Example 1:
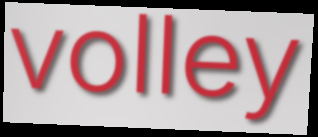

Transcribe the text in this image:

volley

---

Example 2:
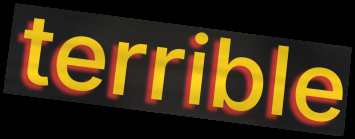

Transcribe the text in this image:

terrible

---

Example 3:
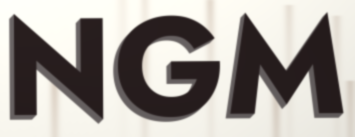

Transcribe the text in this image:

NGM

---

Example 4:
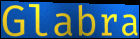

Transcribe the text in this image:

Glabra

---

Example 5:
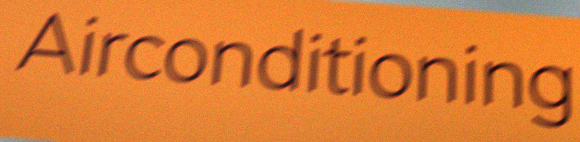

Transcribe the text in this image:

Airconditioning